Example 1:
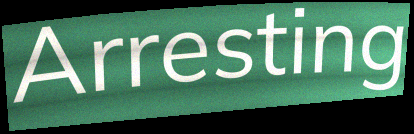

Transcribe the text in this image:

Arresting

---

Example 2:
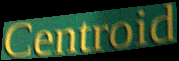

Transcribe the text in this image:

Centroid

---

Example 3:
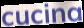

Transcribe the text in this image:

cucina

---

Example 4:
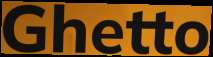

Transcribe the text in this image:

Ghetto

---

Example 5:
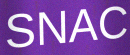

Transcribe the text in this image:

SNAC